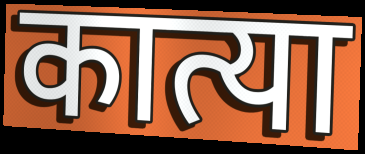
कात्या